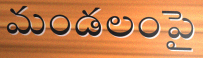
మండలంపై